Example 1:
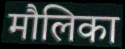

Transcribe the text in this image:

मौलिका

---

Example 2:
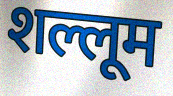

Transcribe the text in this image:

शल्लूम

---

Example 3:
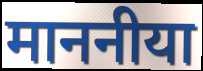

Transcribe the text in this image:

माननीया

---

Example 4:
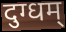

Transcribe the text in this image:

दुग्धम्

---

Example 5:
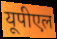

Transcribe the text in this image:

यूपीएल